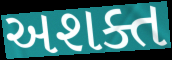
અશક્ત